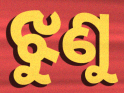
ଝୁଣୁ